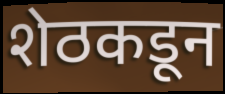
शेठकडून